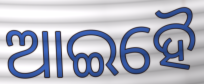
ଆଇହୈ